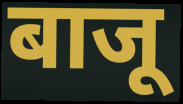
बाजू